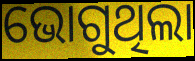
ଭୋଗୁଥିଲା